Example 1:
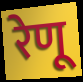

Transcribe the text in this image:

रेणू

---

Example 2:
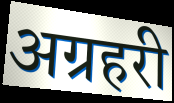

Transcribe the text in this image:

अग्रहरी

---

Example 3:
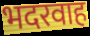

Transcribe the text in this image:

भदरवाह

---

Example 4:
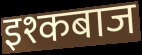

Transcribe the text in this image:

इश्कबाज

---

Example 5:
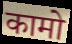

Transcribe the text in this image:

कामो